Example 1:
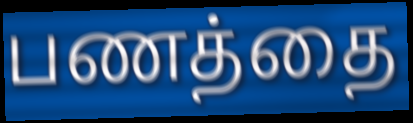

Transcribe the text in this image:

பணத்தை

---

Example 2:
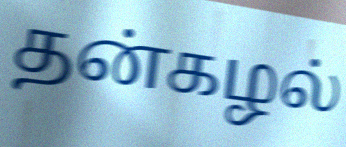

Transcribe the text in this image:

தன்கழல்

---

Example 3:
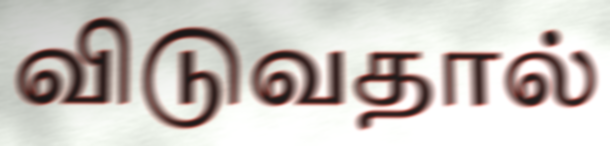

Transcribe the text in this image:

விடுவதால்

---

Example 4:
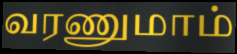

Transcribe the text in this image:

வரணுமாம்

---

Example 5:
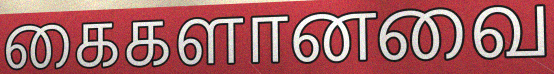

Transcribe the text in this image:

கைகளானவை